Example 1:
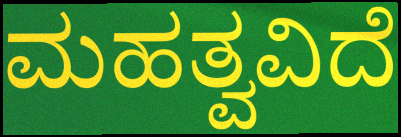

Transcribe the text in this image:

ಮಹತ್ವವಿದೆ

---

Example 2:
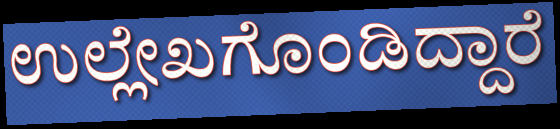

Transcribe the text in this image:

ಉಲ್ಲೇಖಗೊಂಡಿದ್ದಾರೆ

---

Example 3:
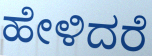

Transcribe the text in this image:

ಹೇಳಿದರೆ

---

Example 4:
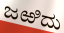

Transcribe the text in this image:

ಜಱಿದು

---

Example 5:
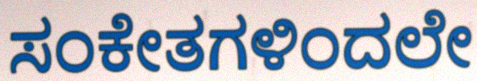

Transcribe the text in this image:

ಸಂಕೇತಗಳಿಂದಲೇ